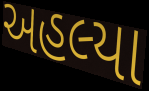
અહલ્યા